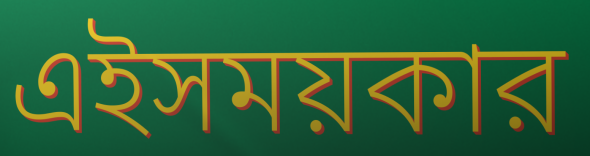
এইসময়কার